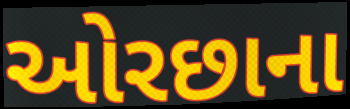
ઓરછાના